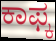
ಕಾಫ್ಕ